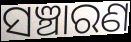
ସଞ୍ଚାରଣ